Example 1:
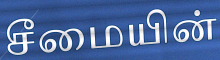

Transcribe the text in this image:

சீமையின்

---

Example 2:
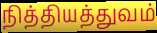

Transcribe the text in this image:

நித்தியத்துவம்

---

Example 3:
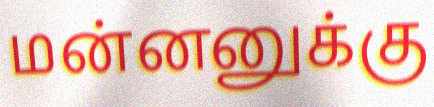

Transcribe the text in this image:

மன்னனுக்கு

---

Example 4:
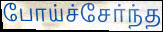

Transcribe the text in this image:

போய்ச்சேர்ந்த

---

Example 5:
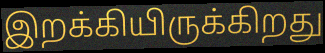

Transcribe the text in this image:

இறக்கியிருக்கிறது